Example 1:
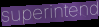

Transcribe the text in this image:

superintend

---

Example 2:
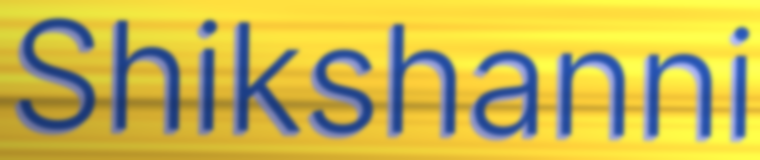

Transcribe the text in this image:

Shikshanni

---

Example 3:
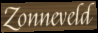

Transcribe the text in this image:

Zonneveld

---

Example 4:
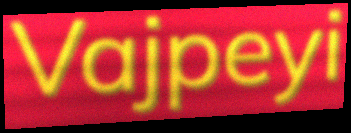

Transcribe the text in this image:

Vajpeyi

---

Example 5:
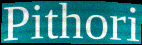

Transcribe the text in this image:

Pithori